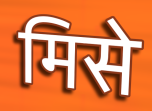
मिसे